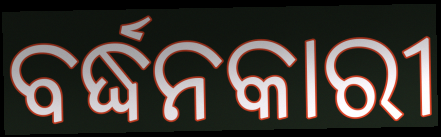
ବର୍ଦ୍ଧନକାରୀ